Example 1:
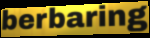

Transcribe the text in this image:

berbaring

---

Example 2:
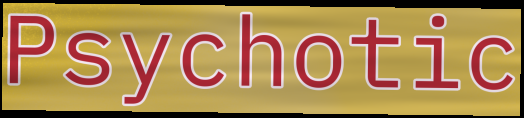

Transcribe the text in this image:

Psychotic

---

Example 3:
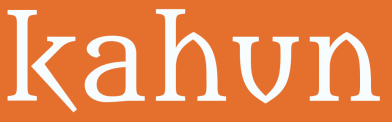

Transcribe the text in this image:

kahun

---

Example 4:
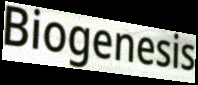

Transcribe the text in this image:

Biogenesis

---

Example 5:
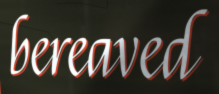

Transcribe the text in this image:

bereaved